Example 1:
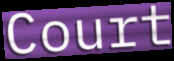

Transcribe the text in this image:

Court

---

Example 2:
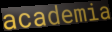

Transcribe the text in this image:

academia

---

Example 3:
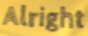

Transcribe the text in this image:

Alright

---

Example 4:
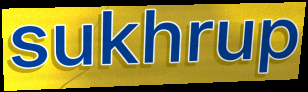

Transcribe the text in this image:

sukhrup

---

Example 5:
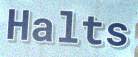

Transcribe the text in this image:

Halts